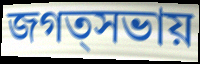
জগত্সভায়